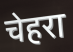
चेहरा